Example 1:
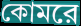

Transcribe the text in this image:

কোমরে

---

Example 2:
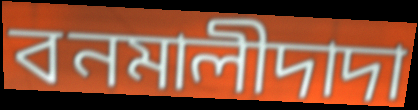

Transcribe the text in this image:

বনমালীদাদা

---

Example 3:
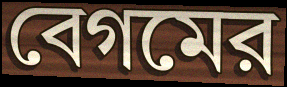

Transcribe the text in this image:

বেগমের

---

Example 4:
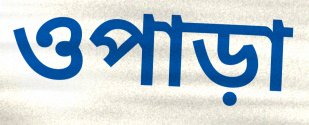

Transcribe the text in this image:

ওপাড়া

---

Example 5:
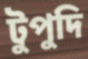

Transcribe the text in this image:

টুপুদি